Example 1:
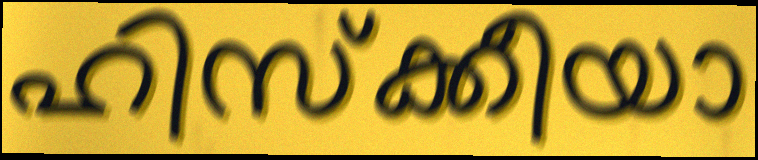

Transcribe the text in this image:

ഹിസ്ക്കീയാ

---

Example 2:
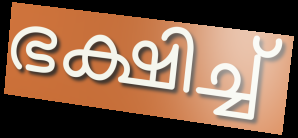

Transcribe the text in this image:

ഭക്ഷിച്ച്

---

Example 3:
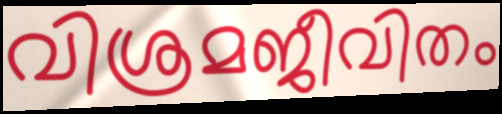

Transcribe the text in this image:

വിശ്രമജീവിതം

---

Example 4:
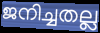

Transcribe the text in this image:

ജനിച്ചതല്ല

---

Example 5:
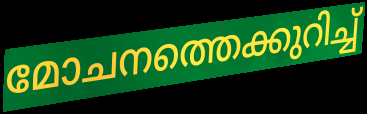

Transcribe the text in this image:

മോചനത്തെക്കുറിച്ച്